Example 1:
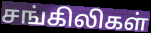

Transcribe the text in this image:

சங்கிலிகள்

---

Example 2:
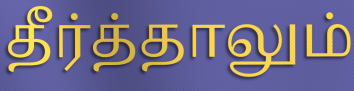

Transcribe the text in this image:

தீர்த்தாலும்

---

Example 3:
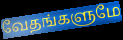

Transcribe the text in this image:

வேதங்களுமே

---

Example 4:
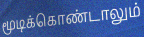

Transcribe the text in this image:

மூடிக்கொண்டாலும்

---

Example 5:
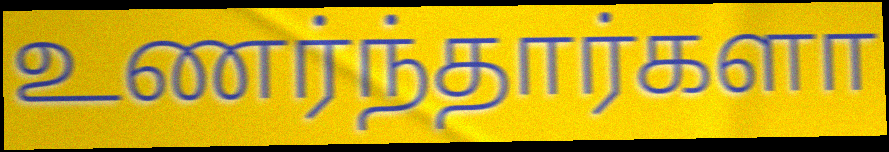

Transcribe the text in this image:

உணர்ந்தார்களா